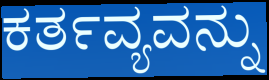
ಕರ್ತವ್ಯವನ್ನು